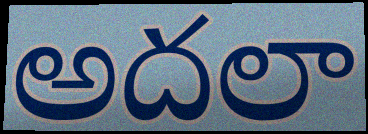
అదలా